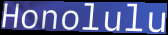
Honolulu